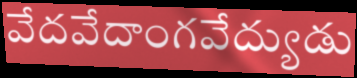
వేదవేదాంగవేద్యుడు